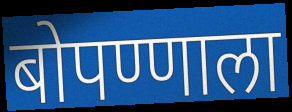
बोपण्णाला